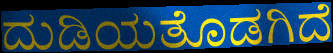
ದುಡಿಯತೊಡಗಿದೆ